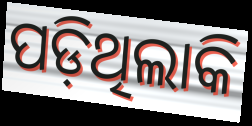
ପଡ଼ିଥିଲାକି